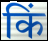
किं